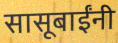
सासूबाईंनी